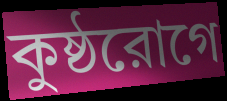
কুষ্ঠরোগে